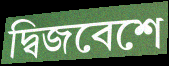
দ্বিজবেশে